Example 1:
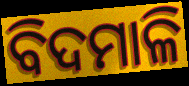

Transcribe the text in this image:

ବିଦମାଳି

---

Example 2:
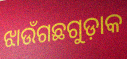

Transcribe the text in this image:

ଝାଉଁଗଛଗୁଡ଼ାକ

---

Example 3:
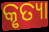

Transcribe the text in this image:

କୃତ୍ୟା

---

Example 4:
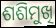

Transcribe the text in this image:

ଶଶିମୁଖି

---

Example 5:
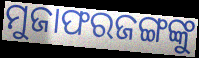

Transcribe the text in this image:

ମୁଜାଫରଜଙ୍ଗଙ୍କୁ